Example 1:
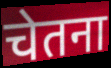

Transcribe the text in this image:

चेतना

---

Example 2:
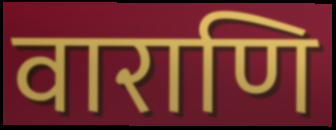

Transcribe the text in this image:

वाराणि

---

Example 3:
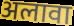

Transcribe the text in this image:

अलावा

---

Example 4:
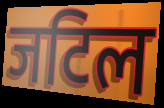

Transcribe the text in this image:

जटिल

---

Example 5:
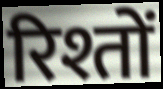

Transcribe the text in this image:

रिश्तों